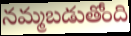
నమ్మబడుతోంది